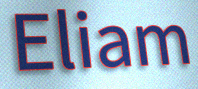
Eliam